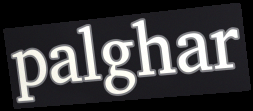
palghar